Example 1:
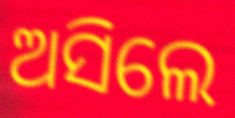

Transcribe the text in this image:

ଅସିଲେ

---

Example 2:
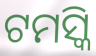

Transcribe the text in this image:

ଟମସ୍କି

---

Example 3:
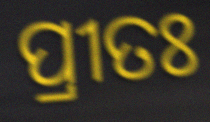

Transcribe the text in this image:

ପ୍ରୀତଃ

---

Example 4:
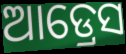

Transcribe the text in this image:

ଆଡ୍ରେସ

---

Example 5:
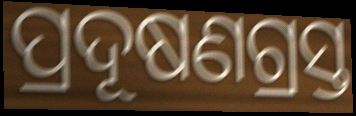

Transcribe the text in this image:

ପ୍ରଦୂଷଣଗ୍ରସ୍ତ